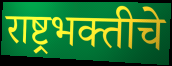
राष्ट्रभक्तीचे